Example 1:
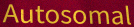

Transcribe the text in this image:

Autosomal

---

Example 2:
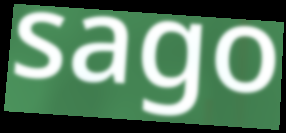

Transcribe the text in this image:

sago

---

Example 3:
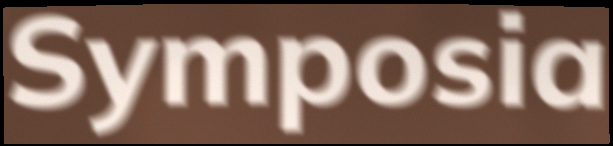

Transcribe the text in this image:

Symposia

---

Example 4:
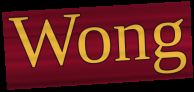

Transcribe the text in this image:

Wong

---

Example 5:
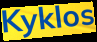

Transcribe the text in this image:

Kyklos